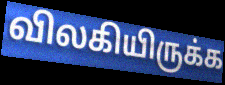
விலகியிருக்க